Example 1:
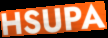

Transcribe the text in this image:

HSUPA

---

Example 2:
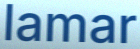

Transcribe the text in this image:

lamar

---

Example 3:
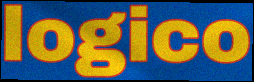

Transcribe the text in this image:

logico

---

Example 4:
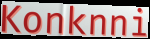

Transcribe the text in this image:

Konknni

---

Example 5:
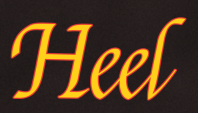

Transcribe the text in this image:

Heel